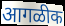
आगळीक